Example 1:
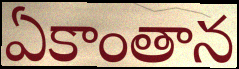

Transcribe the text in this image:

ఏకాంతాన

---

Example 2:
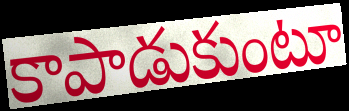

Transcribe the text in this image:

కాపాడుకుంటూ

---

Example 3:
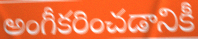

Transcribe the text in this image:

అంగీకరించడానికీ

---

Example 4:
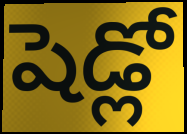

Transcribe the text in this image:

షెడ్లో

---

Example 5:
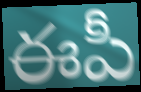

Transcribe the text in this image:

ఈపీ